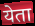
येता